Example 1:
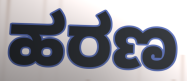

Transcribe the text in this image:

ಹರಣ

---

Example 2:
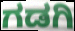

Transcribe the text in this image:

ಗಡಗಿ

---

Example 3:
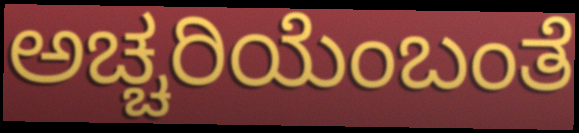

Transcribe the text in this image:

ಅಚ್ಚರಿಯೆಂಬಂತೆ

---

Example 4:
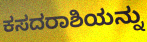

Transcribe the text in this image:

ಕಸದರಾಶಿಯನ್ನು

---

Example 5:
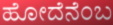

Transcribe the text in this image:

ಹೋದೆನೆಂಬ